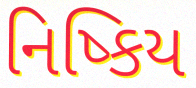
નિષ્કિય